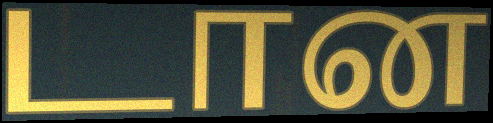
டான